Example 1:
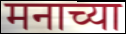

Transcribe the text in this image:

मनाच्‍या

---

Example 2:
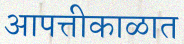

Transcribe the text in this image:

आपत्तीकाळात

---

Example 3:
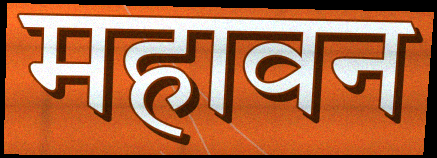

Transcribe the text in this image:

महावन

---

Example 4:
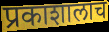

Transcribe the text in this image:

प्रकाशालाच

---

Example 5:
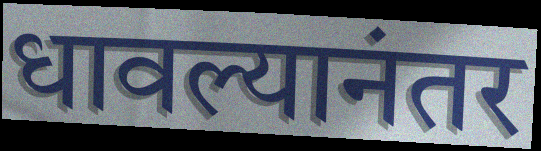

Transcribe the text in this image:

धावल्यानंतर